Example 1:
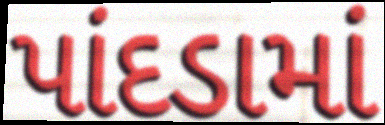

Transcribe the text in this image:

પાંદડામાં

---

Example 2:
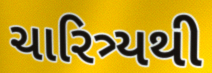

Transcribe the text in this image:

ચારિત્ર્યથી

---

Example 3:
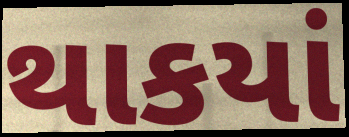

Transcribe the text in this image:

થાકયાં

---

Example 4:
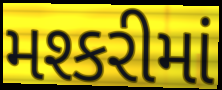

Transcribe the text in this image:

મશ્કરીમાં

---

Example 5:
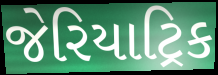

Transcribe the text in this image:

જેરિયાટ્રિક